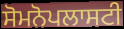
ਸੋਮਨੋਪਲਾਸਟੀ